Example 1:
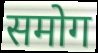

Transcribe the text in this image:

समोग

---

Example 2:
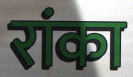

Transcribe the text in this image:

रांका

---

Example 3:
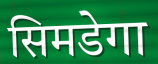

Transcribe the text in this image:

सिमडेगा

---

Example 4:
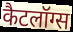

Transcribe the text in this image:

कैटलॉग्स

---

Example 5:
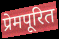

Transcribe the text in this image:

प्रेमपूरित